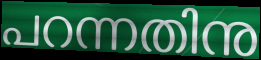
പറന്നതിനു